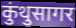
कुंथुसागर